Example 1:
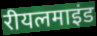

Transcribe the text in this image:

रीयलमाइंड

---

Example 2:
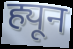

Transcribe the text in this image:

ह्यून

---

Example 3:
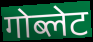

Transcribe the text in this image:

गोब्लेट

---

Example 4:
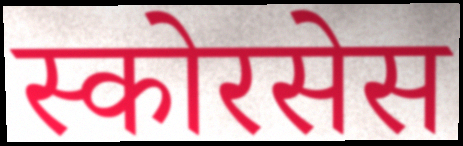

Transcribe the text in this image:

स्कोरसेस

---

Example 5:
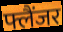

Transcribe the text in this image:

फ्लैंजर